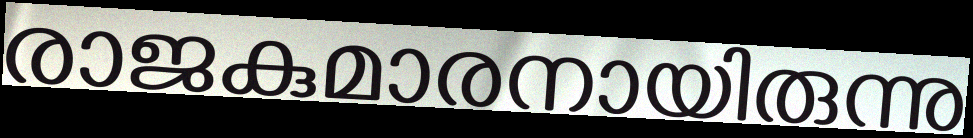
രാജകുമാരനായിരുന്നു